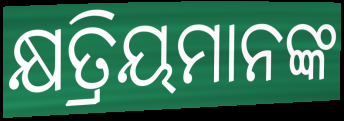
କ୍ଷତ୍ରିୟମାନଙ୍କ